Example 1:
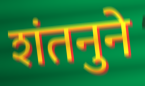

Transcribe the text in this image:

शंतनुने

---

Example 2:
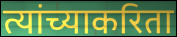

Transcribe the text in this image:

त्यांच्याकरिता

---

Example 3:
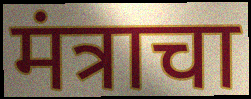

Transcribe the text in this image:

मंत्राचा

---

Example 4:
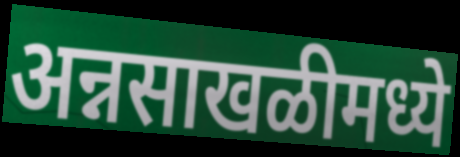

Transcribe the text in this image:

अन्नसाखळीमध्ये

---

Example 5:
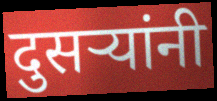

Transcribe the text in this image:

दुसर्‍यांनी